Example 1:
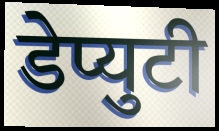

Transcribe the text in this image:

डेप्युटी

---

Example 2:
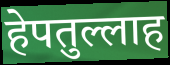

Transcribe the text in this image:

हेपतुल्लाह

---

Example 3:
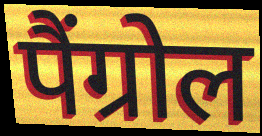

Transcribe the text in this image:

पैंग्रोल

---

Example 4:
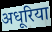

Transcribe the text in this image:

अधूरिया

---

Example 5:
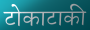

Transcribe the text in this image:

टोकाटाकी